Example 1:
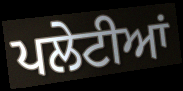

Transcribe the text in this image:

ਪਲੇਟੀਆਂ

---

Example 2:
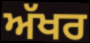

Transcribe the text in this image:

ਅੱਖਰ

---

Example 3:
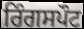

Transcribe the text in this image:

ਰਿੰਗਸਪੌਟ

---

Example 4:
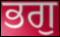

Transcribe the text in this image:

ਭਗੁ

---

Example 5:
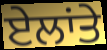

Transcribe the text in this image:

ਏਲਾਂਤੇ